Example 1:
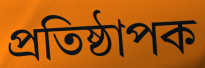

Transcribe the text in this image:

প্ৰতিষ্ঠাপক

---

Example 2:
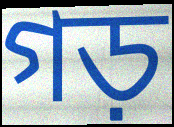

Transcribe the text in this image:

গড়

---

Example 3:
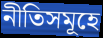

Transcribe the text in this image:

নীতিসমূহে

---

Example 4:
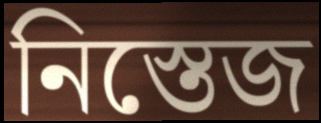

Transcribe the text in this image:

নিস্তেজ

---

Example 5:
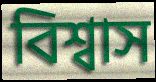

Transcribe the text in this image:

বিশ্বাস